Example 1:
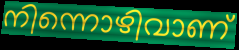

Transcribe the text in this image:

നിന്നൊഴിവാണ്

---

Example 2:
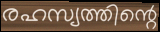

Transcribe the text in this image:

രഹസ്യത്തിന്റെ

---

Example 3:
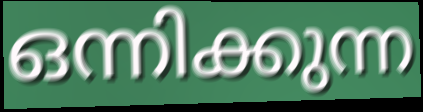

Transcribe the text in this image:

ഒന്നിക്കുന്ന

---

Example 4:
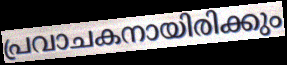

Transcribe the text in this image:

പ്രവാചകനായിരിക്കും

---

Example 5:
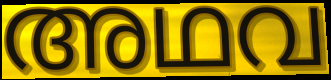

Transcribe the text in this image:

അഥവ